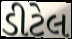
ડીટેલ